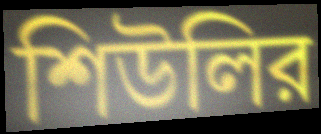
শিউলির